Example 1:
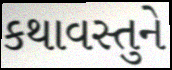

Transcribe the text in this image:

કથાવસ્તુને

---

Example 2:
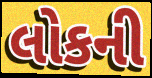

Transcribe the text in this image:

લોકની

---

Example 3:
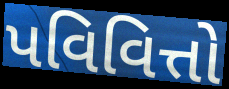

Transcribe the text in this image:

પવિવિત્તો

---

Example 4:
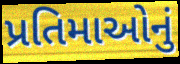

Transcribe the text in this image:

પ્રતિમાઓનું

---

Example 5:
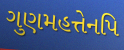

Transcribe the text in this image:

ગુણમહત્તેનપિ